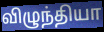
விழுந்தியா